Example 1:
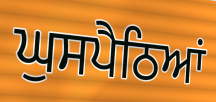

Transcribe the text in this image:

ਘੁਸਪੈਠਿਆਂ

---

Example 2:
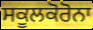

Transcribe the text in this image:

ਸਕੂਲਕੋਰੋਨਾ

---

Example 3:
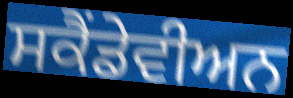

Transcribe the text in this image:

ਸਕੈਂਡੇਵੀਅਨ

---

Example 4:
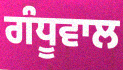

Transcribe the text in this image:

ਗੰਧੂਵਾਲ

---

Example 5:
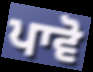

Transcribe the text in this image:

ਪਾਵੋ